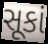
સૂકાં